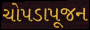
ચોપડાપૂજન